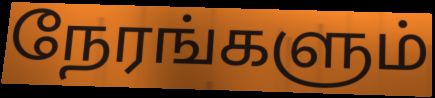
நேரங்களும்